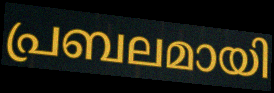
പ്രബലമായി